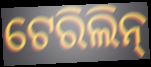
ଟେରିଲିନ୍